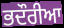
ਭਦੌਰੀਆ